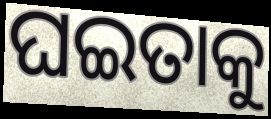
ଘଇତାକୁ